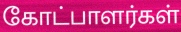
கோட்பாளர்கள்